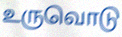
உருவொடு